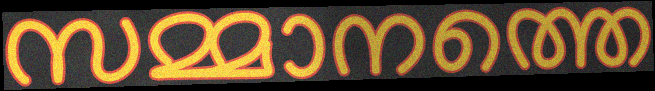
സമ്മാനത്തെ